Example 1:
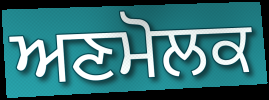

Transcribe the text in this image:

ਅਣਮੋਲਕ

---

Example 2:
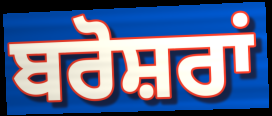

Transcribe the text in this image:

ਬਰੋਸ਼ਰਾਂ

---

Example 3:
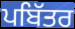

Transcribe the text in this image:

ਪਬਿੱਤਰ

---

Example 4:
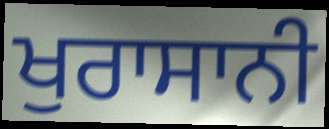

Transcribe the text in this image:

ਖੁਰਾਸਾਨੀ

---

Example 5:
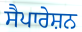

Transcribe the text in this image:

ਸੈਪਾਰੇਸ਼ਨ